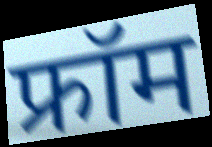
फ्रॉम